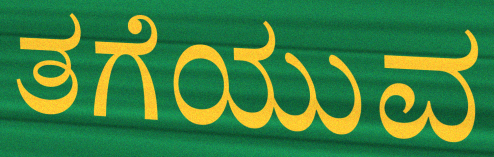
ತಗೆಯುವ